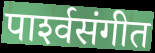
पार्श्‍वसंगीत